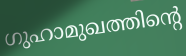
ഗുഹാമുഖത്തിന്റെ